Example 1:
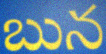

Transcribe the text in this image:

బున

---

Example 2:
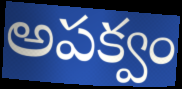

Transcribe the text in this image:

అపక్వం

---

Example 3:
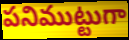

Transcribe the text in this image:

పనిముట్టుగా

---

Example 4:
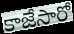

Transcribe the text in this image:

కాజేసారో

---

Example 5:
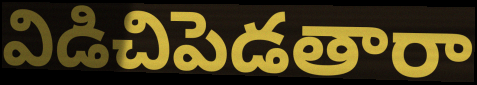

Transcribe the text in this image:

విడిచిపెడతారా